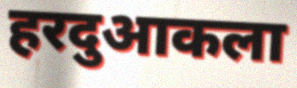
हरदुआकला